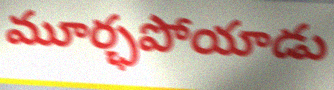
మూర్ఛపోయాడు